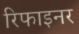
रिफाइनर